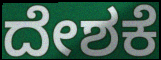
ದೇಶಕೆ